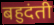
बहुदंती